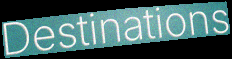
Destinations